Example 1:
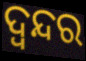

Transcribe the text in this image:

ଦ୍ବନ୍ଦର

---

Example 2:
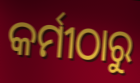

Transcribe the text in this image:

କର୍ମୀଠାରୁ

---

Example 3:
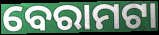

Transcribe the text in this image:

ବେରାମଟା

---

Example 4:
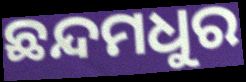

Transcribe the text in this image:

ଛନ୍ଦମଧୁର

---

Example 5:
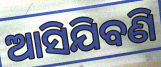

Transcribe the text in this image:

ଆସିଯିବଣି